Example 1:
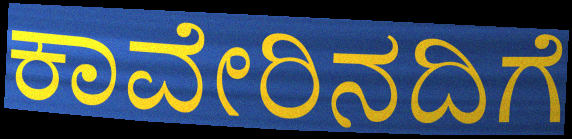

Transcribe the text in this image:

ಕಾವೇರಿನದಿಗೆ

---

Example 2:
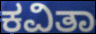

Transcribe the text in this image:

ಕವಿತಾ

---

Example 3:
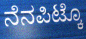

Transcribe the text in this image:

ನೆನಪಿಟ್ಕೊ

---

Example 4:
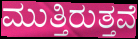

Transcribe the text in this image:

ಮುತ್ತಿರುತ್ತವೆ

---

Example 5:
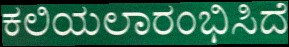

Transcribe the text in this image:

ಕಲಿಯಲಾರಂಭಿಸಿದೆ